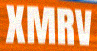
XMRV